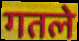
गतले